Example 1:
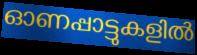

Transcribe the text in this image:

ഓണപ്പാട്ടുകളിൽ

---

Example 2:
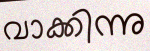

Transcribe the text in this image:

വാക്കിന്നു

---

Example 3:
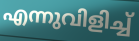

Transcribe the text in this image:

എന്നുവിളിച്ച്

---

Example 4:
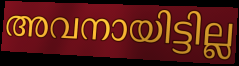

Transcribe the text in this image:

അവനായിട്ടില്ല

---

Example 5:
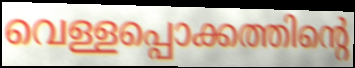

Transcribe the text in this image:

വെള്ളപ്പൊക്കത്തിന്റെ